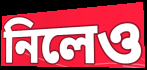
নিলেও